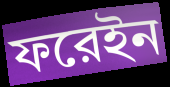
ফরেইন